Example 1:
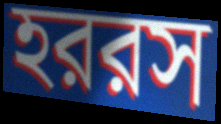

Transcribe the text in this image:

হররস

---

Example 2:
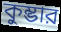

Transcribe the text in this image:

কুম্ভার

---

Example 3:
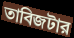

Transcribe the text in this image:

তাবিজটার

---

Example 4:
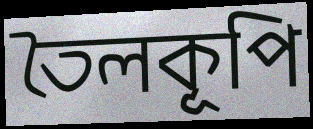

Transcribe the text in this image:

তৈলকূপি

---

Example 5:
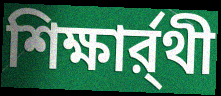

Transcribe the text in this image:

শিক্ষার্র্থী